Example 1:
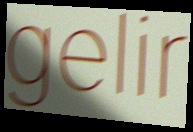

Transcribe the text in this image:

gelir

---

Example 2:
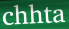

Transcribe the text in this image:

chhta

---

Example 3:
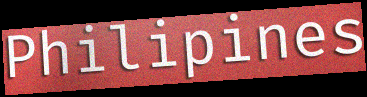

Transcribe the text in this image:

Philipines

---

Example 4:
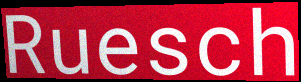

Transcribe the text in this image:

Ruesch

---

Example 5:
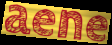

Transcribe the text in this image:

aene